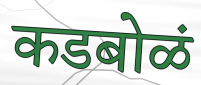
कडबोळं